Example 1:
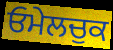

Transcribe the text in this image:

ਓਮੇਲਚੁਕ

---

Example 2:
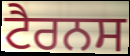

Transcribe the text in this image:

ਟੈਰਨਸ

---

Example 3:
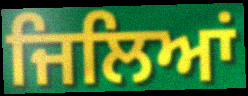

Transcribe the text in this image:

ਜਿਲਿਆਂ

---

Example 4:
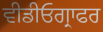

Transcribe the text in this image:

ਵੀਡੀਓਗ੍ਰਾਫਰ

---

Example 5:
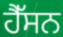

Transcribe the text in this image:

ਹੈੱਸਨ